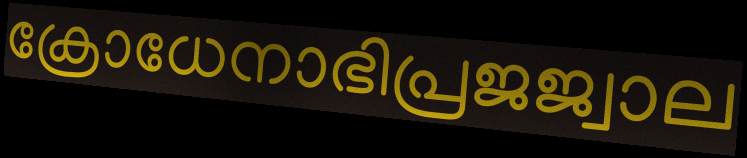
ക്രോധേനാഭിപ്രജജ്വാല